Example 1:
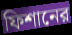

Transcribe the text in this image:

ফিশানের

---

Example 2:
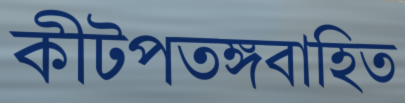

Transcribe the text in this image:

কীটপতঙ্গবাহিত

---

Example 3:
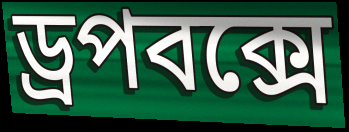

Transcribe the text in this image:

ড্রপবক্সে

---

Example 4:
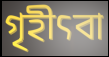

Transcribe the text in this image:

গৃহীৎবা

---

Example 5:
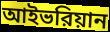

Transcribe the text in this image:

আইভরিয়ান